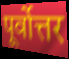
पूर्वोत्तर